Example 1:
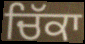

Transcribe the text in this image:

ਚਿੱਕਾ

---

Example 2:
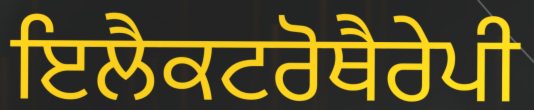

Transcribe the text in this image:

ਇਲੈਕਟਰੋਥੈਰੇਪੀ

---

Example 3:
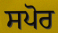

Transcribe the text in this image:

ਸਪੋਰ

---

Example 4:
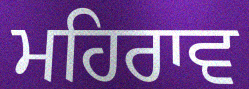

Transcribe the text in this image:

ਮਹਿਰਾਵ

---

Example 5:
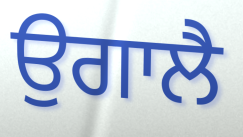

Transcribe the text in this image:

ਉਗਾਲੈ